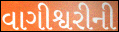
વાગીશ્વરીની